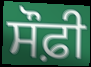
ਸੌਫ਼ੀ